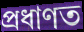
প্রধাণত